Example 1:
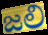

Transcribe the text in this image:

జలి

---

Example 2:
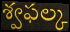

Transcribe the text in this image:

శ్వఫల్క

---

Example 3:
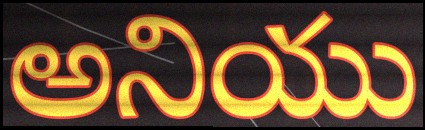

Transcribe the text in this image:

అనియు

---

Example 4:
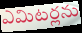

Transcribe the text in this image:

ఎమిటర్లను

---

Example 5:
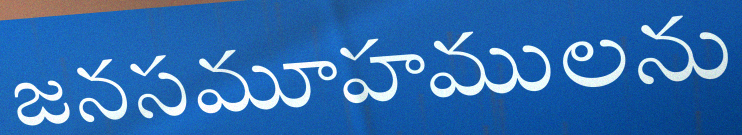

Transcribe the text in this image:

జనసమూహములను